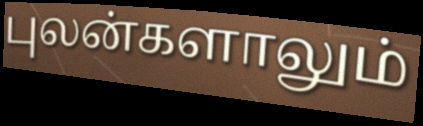
புலன்களாலும்